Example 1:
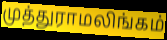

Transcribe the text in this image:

முத்துராமலிங்கம்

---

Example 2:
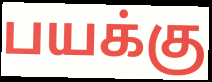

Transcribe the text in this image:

பயக்கு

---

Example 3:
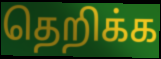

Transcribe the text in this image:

தெறிக்க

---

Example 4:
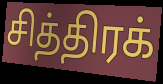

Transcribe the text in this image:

சித்திரக்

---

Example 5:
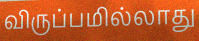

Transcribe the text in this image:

விருப்பமில்லாது